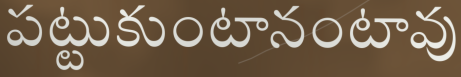
పట్టుకుంటానంటావు